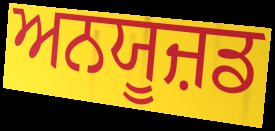
ਅਨਯੂਜ਼ਡ